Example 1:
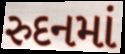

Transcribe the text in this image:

રુદનમાં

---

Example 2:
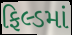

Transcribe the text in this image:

ફિલ્ડમાં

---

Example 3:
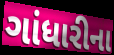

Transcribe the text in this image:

ગાંધારીના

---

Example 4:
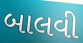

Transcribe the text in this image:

બાલવી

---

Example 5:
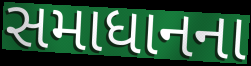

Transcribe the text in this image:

સમાધાનના